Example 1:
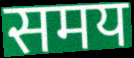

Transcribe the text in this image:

समय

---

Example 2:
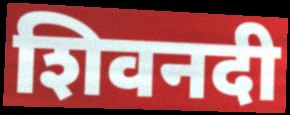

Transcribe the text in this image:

शिवनदी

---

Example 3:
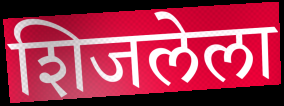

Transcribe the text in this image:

शिजलेला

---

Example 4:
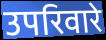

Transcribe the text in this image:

उपरिवारे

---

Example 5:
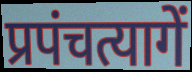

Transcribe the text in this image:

प्रपंचत्यागें